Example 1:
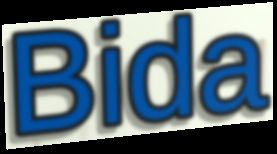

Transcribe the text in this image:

Bida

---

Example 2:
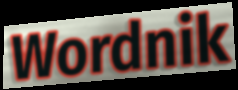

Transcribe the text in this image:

Wordnik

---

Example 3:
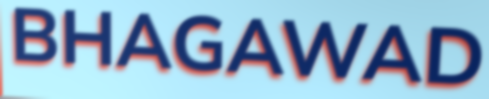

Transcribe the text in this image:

BHAGAWAD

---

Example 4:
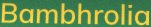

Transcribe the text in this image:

Bambhrolia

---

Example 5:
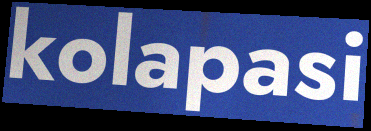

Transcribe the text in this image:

kolapasi